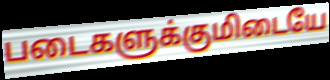
படைகளுக்குமிடையே